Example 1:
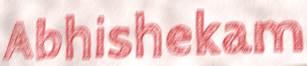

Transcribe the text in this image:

Abhishekam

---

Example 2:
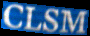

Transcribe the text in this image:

CLSM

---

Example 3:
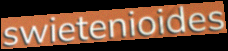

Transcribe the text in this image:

swietenioides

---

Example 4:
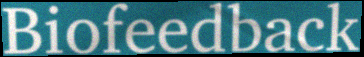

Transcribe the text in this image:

Biofeedback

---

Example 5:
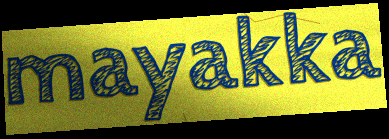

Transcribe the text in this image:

mayakka